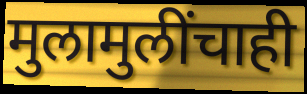
मुलामुलींचाही